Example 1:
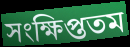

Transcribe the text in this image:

সংক্ষিপ্ততম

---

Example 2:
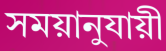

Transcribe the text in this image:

সময়ানুযায়ী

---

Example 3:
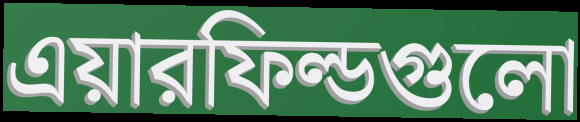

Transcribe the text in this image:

এয়ারফিল্ডগুলো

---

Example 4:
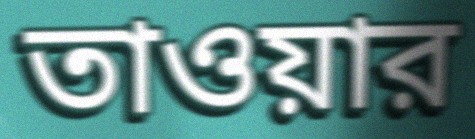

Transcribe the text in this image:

তাওয়ার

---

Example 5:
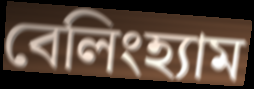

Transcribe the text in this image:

বেলিংহ্যাম